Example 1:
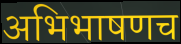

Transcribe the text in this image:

अभिभाषणच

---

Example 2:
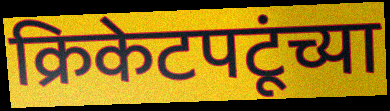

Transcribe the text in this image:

क्रिकेटपटूंच्या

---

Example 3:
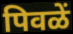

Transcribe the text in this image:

पिवळें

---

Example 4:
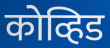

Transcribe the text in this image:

कोव्हिड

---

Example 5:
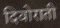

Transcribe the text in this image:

दिवोराती